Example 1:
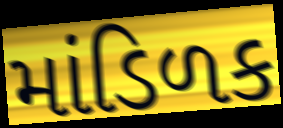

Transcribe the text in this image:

માંડિળક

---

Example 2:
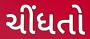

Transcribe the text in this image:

ચીંધતો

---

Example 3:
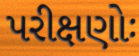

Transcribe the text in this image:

પરીક્ષણોઃ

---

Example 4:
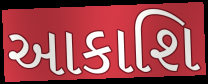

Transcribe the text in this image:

આકાશિ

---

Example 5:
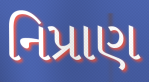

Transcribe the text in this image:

નિપ્રાણ